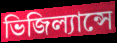
ভিজিল্যান্সে